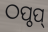
ଠପ୍ଠପ୍